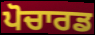
ਪੋਚਾਰਡ